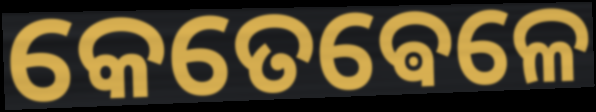
କେତେଵେଳେ